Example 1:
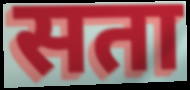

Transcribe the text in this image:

सता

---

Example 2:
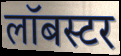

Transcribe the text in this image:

लॉबस्टर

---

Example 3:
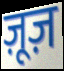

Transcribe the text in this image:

ज़ूज़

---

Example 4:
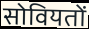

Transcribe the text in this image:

सोवियतों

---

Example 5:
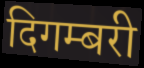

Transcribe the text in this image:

दिगम्बरी